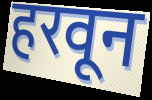
हरवून